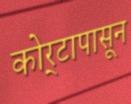
कोर्टापासून